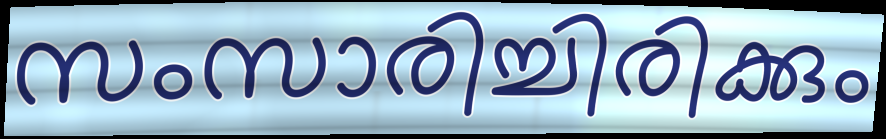
സംസാരിച്ചിരിക്കും